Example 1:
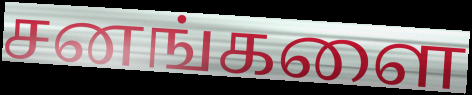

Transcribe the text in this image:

சனங்களை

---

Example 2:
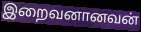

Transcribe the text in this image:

இறைவனானவன்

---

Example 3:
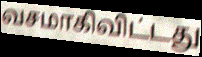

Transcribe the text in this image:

வசமாகிவிட்டது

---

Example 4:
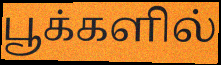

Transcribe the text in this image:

பூக்களில்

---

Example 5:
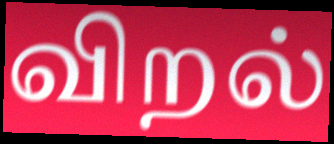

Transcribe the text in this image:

விறல்